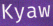
Kyaw